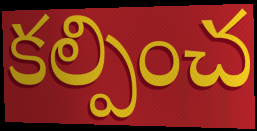
కల్పించ